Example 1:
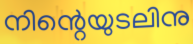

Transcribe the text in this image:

നിന്റെയുടലിനു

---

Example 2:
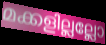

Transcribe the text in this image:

മക്കളില്ലല്ലോ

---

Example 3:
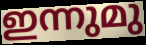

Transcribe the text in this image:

ഇന്നുമു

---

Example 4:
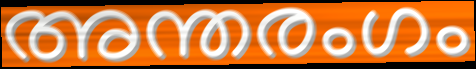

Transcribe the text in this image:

അന്തരംഗം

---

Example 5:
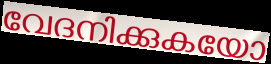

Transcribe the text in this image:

വേദനിക്കുകയോ